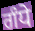
ਗੰਧੇ